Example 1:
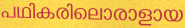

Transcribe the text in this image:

പഥികരിലൊരാളായ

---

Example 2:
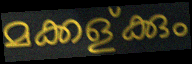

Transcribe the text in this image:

മക്കള്ക്കും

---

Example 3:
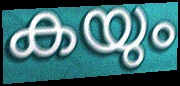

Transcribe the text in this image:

കയും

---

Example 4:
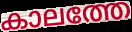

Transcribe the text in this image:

കാലത്തേ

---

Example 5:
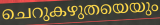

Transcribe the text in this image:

ചെറുകഴുതയെയും